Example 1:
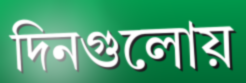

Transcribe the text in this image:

দিনগুলোয়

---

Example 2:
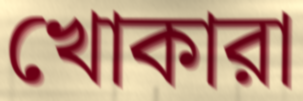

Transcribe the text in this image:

খোকারা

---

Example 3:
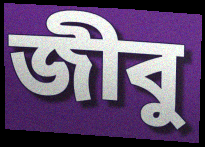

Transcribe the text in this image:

জীবু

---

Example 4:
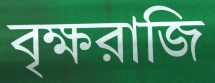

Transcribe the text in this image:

বৃক্ষরাজি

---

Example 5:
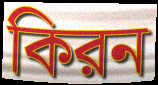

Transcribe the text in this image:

কিরন